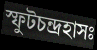
স্ফুটচন্দ্রহাসঃ